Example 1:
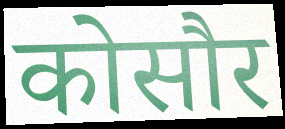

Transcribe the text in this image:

कोसौर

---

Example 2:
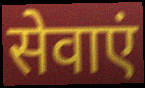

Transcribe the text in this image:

सेवाएं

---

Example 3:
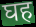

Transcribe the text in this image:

घह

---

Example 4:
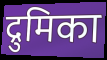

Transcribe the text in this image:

द्रुमिका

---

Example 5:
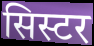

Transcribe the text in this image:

सिस्टर